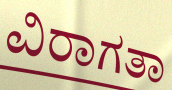
ವಿರಾಗತಾ